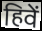
हिवें